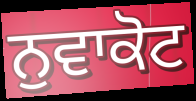
ਨੁਵਾਕੋਟ